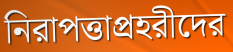
নিরাপত্তাপ্রহরীদের